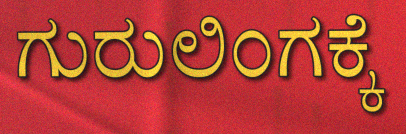
ಗುರುಲಿಂಗಕ್ಕೆ